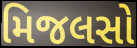
મિજલસો